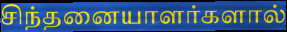
சிந்தனையாளர்களால்